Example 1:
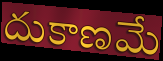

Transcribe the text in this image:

దుకాణమే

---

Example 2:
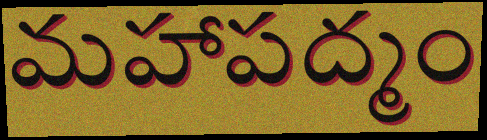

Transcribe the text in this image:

మహాపద్మం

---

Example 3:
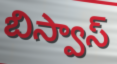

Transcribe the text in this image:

బిస్వాస్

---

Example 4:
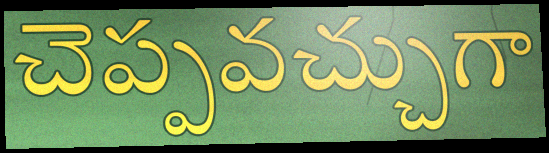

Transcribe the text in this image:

చెప్పవచ్చుగా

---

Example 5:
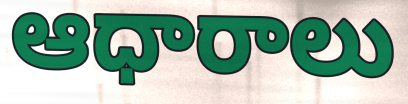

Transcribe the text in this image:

ఆధారాలు